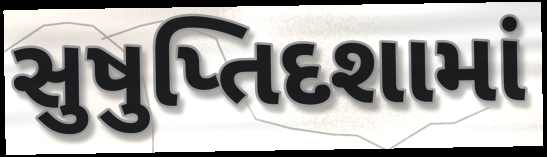
સુષુપ્તિદશામાં